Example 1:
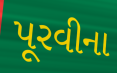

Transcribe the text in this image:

પૂરવીના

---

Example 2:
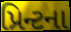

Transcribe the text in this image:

પ્રિન્ટના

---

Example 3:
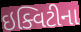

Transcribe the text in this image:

ઇક્વિટીના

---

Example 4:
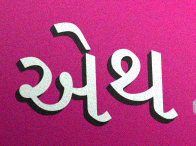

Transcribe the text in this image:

એથ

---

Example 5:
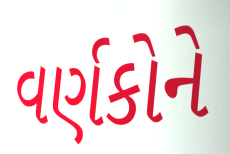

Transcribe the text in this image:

વર્ણકોને